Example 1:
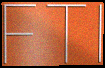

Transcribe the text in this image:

FTI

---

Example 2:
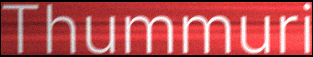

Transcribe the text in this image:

Thummuri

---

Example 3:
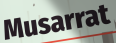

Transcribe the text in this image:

Musarrat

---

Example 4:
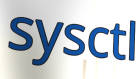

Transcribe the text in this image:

sysctl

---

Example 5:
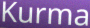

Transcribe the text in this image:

Kurma